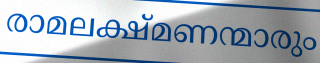
രാമലക്ഷ്മണന്മാരും